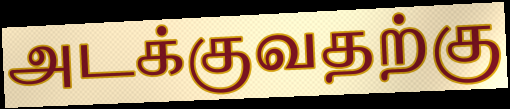
அடக்குவதற்கு